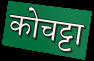
कोचट्टा